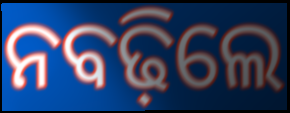
ନବଢ଼ିଲେ